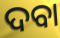
ଦବା